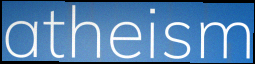
atheism